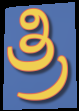
ತ್ರಿ